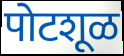
पोटशूळ